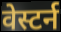
वेस्टर्न